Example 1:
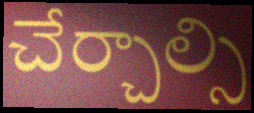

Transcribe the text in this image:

చేర్చాల్సి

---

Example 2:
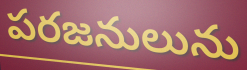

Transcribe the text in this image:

పరజనులును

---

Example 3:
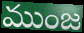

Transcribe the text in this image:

ముంజ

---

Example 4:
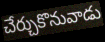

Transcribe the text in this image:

చేర్చుకొనువాడు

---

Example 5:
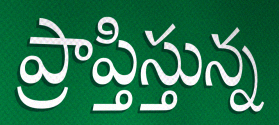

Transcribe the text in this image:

ప్రాప్తిస్తున్న